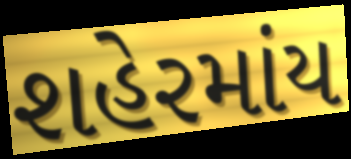
શહેરમાંય